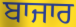
ਬਾਜਾਰ